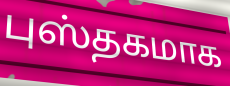
புஸ்தகமாக